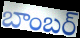
బాంబర్